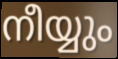
നീയ്യും